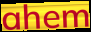
ahem